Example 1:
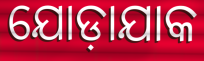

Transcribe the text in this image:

ଯୋଡ଼ାଯାକ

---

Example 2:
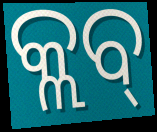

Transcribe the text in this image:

କ୍ଲବ୍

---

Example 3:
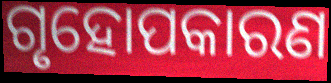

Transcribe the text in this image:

ଗୃହୋପକାରଣ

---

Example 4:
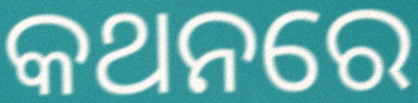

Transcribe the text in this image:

କଥନରେ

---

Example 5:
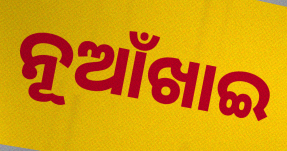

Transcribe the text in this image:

ନୂଆଁଖାଇ